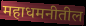
महाधमनीतील